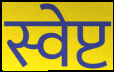
स्वेप्ट